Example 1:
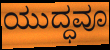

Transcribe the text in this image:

ಯುದ್ಧವೂ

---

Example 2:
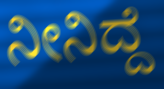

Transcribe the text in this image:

ನೀನಿದ್ದೆ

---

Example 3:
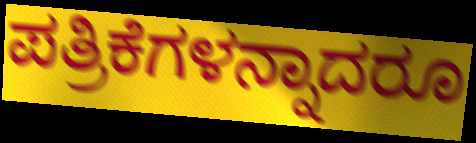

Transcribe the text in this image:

ಪತ್ರಿಕೆಗಳನ್ನಾದರೂ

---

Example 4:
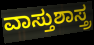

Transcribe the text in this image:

ವಾಸ್ತುಶಾಸ್ತ್ರ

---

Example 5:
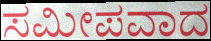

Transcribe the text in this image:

ಸಮೀಪವಾದ